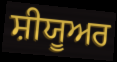
ਸ਼ੀਯੂਅਰ